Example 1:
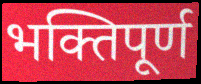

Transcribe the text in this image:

भक्तिपूर्ण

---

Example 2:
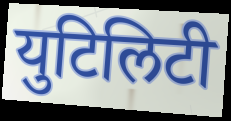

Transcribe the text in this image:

युटिलिटी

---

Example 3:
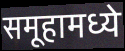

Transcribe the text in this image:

समूहामध्ये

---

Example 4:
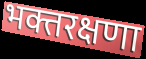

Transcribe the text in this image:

भक्तरक्षणा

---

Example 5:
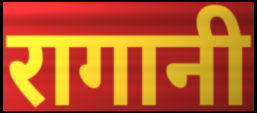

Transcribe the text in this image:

रागानी